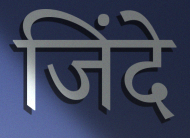
जिंदे